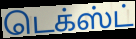
டெக்ஸ்ட்